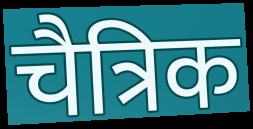
चैत्रिक